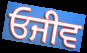
ਓਜੀਵ